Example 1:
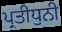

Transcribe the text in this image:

ਪ੍ਰਤੀਧੁਨੀ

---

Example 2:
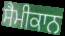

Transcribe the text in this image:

ਸੈਮੀਕਾਨ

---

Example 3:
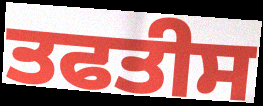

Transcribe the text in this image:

ਤਫਤੀਸ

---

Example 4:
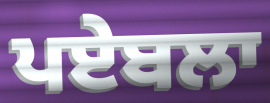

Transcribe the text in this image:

ਪਏਬਲਾ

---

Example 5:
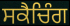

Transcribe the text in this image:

ਸਕੈਚਿੰਗ